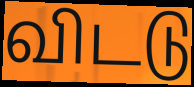
விடடு